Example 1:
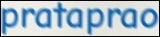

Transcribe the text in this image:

prataprao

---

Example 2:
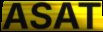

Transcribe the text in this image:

ASAT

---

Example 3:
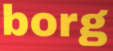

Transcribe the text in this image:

borg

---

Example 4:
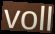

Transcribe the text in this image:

voll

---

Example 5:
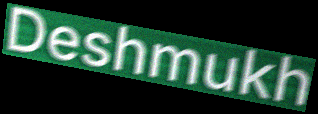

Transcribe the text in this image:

Deshmukh